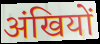
अंखियों